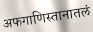
अफगाणिस्तानातलं